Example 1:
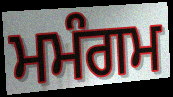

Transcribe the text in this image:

ਮਮੰਗਮ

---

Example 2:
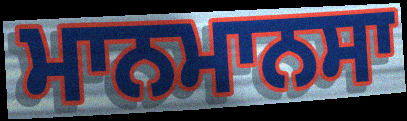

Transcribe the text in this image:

ਮਾਨਮਾਨਸਾ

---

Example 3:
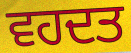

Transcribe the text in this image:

ਵਹਦਤ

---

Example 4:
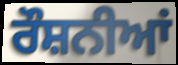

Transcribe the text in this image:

ਰੌਸ਼ਨੀਆਂ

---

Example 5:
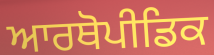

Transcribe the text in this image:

ਆਰਥੋਪੀਡਿਕ